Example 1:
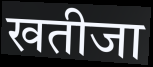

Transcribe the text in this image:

खतीजा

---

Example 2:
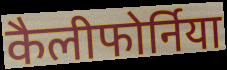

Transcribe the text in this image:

कैलीफोर्निया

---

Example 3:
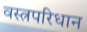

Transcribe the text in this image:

वस्त्रपरिधान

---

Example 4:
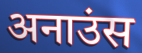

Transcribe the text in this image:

अनाउंस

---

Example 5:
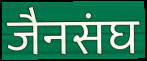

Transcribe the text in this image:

जैनसंघ